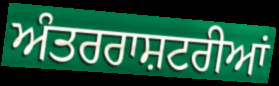
ਅੰਤਰਰਾਸ਼ਟਰੀਆਂ